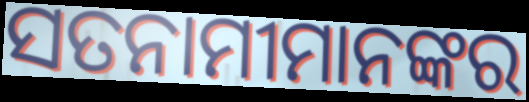
ସତନାମୀମାନଙ୍କର